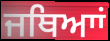
ਜਥਿਆਾਂ